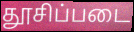
தூசிப்படை